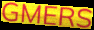
GMERS